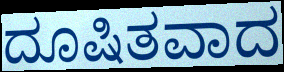
ದೂಷಿತವಾದ